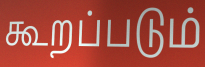
கூறப்படும்